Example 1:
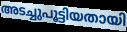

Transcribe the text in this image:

അടച്ചുപൂട്ടിയതായി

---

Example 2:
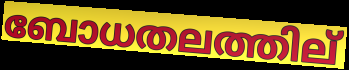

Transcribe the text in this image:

ബോധതലത്തില്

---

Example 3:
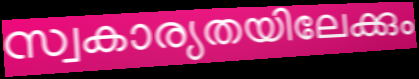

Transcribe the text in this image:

സ്വകാര്യതയിലേക്കും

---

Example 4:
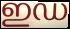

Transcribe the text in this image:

ഇഡ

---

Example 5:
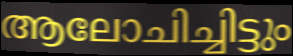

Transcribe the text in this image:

ആലോചിച്ചിട്ടും